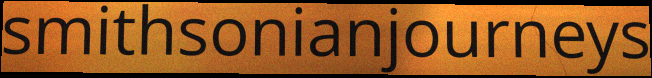
smithsonianjourneys